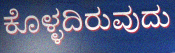
ಕೊಳ್ಳದಿರುವುದು